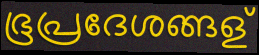
ഭൂപ്രദേശങ്ങള്